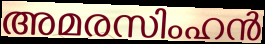
അമരസിംഹൻ